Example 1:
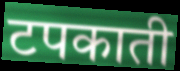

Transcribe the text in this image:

टपकाती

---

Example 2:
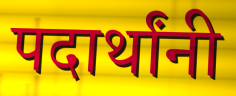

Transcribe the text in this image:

पदार्थांनी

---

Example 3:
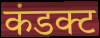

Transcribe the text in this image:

कंडक्ट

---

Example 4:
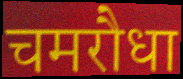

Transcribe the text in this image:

चमरौधा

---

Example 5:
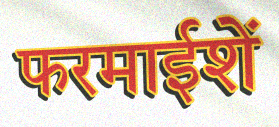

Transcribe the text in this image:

फरमाईशें